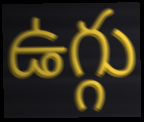
ఉగ్గు